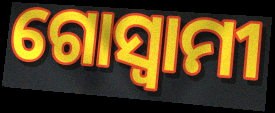
ଗୋସ୍ୱାମୀ